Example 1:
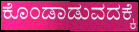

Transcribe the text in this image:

ಕೊಂಡಾಡುವದಕ್ಕೆ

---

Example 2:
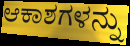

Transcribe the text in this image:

ಆಕಾಶಗಳನ್ನು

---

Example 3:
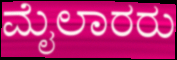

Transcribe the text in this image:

ಮೈಲಾರರು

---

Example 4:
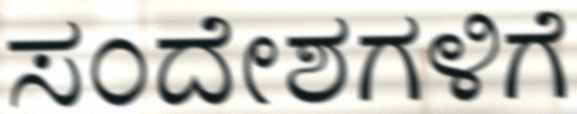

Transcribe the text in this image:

ಸಂದೇಶಗಳಿಗೆ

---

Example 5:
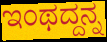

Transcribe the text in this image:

ಇಂಥದ್ದನ್ನ